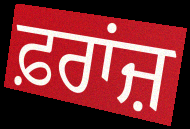
ਫ਼ਰਾਂਜ਼